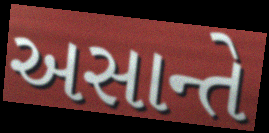
અસાન્તે